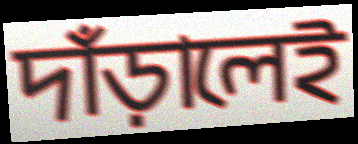
দাঁড়ালেই